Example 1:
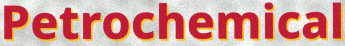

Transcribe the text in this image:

Petrochemical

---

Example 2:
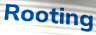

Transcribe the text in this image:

Rooting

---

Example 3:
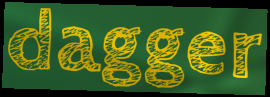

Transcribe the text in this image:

dagger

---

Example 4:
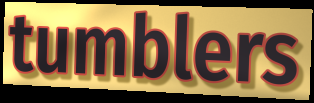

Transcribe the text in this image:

tumblers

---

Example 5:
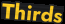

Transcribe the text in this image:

Thirds